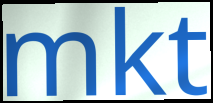
mkt